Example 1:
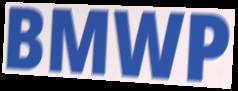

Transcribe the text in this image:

BMWP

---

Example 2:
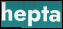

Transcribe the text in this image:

hepta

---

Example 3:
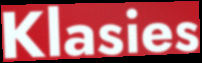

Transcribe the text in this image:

Klasies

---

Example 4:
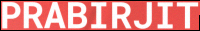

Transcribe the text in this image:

PRABIRJIT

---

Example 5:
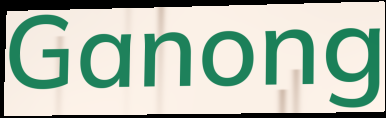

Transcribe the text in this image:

Ganong